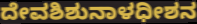
ದೇವಶಿಶುನಾಳಧೀಶನ